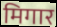
मिगार